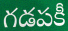
గడపకీ